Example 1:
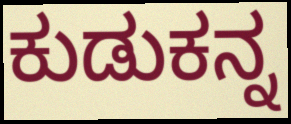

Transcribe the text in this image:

ಕುಡುಕನ್ನ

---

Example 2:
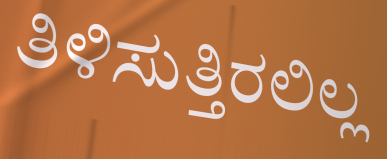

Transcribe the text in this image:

ತಿಳಿಸುತ್ತಿರಲಿಲ್ಲ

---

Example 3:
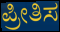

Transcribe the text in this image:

ಪ್ರೀತಿಸ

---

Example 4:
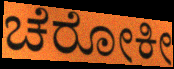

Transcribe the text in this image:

ಚೆರೋಕೀ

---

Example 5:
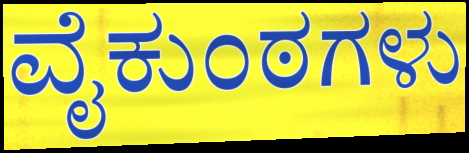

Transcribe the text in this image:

ವೈಕುಂಠಗಳು